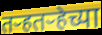
तऱ्हतऱ्हेच्या